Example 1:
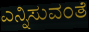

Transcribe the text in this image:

ಎನ್ನಿಸುವಂತೆ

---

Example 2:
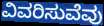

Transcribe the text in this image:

ವಿವರಿಸುವೆವು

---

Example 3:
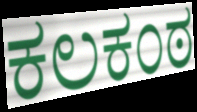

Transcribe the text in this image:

ಕಲಕಂಠ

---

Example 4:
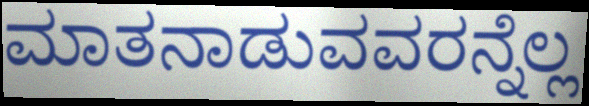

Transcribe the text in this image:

ಮಾತನಾಡುವವರನ್ನೆಲ್ಲ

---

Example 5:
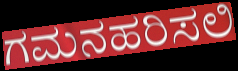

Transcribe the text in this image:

ಗಮನಹರಿಸಲಿ